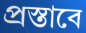
প্রস্তাবে